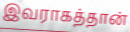
இவராகத்தான்